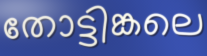
തോട്ടിങ്കലെ